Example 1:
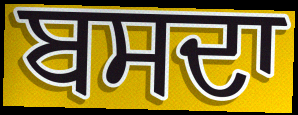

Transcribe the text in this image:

ਬਸਦਾ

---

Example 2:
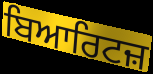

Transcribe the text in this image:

ਬਿਆਰਿਟਜ਼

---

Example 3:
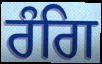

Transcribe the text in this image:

ਰੰਗਿ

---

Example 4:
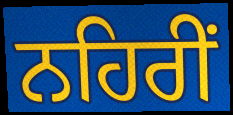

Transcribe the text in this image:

ਨਹਿਰੀਂ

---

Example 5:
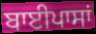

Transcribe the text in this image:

ਬਾਈਪਾਸਾਂ